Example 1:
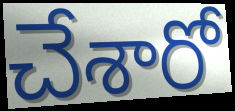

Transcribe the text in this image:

చేశారో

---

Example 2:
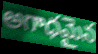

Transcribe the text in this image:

అగాధమైన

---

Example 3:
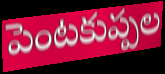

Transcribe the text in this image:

పెంటకుప్పల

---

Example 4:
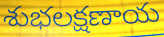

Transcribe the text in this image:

శుభలక్షణాయ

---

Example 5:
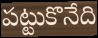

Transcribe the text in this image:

పట్టుకొనేది